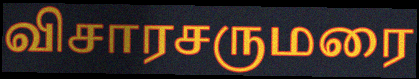
விசாரசருமரை